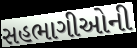
સહભાગીઓની